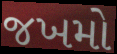
જખમો